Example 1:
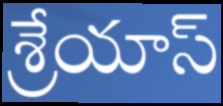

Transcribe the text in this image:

శ్రేయాస్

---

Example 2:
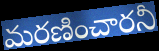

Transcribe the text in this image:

మరణించారనీ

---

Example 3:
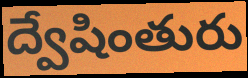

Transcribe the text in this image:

ద్వేషింతురు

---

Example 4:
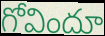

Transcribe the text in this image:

గోవిందూ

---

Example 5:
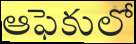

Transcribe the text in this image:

ఆఫెకులో